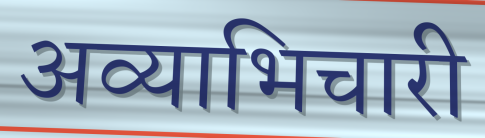
अव्याभिचारी